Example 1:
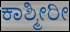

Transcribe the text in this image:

ಕಾಶ್ಮೀರೀ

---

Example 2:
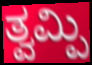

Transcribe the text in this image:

ತ್ವಮ್ಪಿ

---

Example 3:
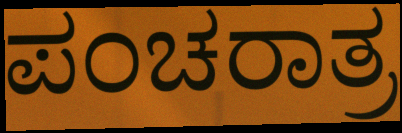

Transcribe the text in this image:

ಪಂಚರಾತ್ರ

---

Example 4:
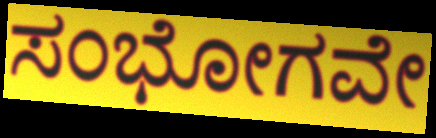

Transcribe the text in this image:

ಸಂಭೋಗವೇ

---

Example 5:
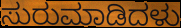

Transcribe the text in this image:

ಸುರುಮಾಡಿದಳು